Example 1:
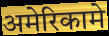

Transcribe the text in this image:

अमेरिकामे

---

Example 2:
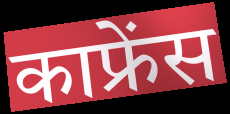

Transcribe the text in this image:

काफ्रेंस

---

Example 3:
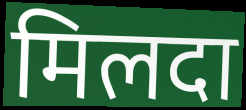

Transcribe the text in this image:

मिलदा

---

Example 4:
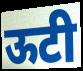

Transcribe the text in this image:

ऊटी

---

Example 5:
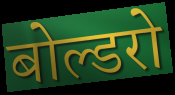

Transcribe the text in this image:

बोल्डरो